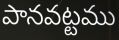
పానవట్టము